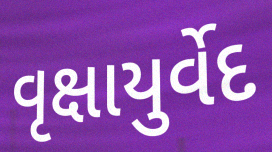
વૃક્ષાયુર્વેદ